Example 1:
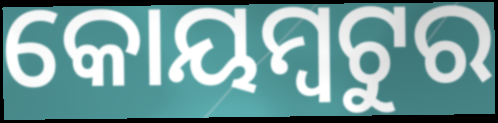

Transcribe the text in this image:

କୋୟମ୍ବଟୁର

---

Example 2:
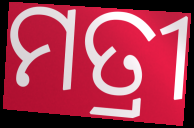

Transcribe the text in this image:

ମତ୍ରୀ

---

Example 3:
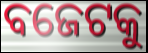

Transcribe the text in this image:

ବଜେଟକୁ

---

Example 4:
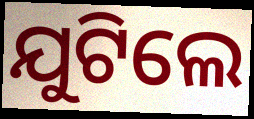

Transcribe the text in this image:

ଯୁଟିଲେ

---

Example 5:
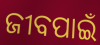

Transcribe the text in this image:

ଜୀବପାଇଁ